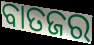
ବାତଜର